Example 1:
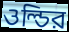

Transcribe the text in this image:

ওল্ডির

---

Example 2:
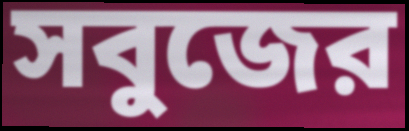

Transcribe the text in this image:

সবুজের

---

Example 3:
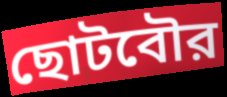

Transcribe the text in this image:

ছোটবৌর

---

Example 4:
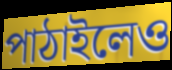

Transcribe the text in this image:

পাঠাইলেও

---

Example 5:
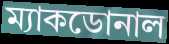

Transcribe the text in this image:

ম্যাকডোনাল